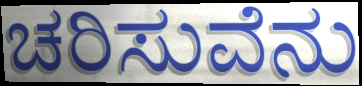
ಚರಿಸುವೆನು